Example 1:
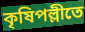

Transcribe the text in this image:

কৃষিপল্লীতে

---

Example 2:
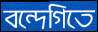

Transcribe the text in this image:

বন্দেগিতে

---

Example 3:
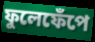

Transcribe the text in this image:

ফুলেফেঁপে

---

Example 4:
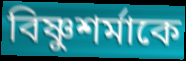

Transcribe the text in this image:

বিষ্ণুশর্মাকে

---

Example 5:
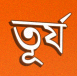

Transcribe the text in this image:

তূর্য